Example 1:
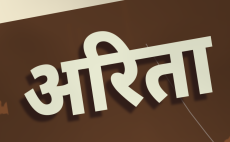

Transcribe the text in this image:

अरिता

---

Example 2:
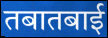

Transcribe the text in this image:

तबातबाई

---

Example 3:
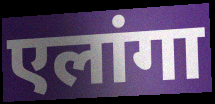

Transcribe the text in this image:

एलांगा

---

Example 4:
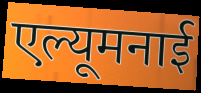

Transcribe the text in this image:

एल्यूमनाई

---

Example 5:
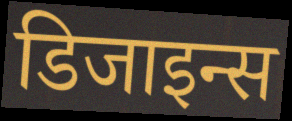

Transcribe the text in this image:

डिजाइन्स